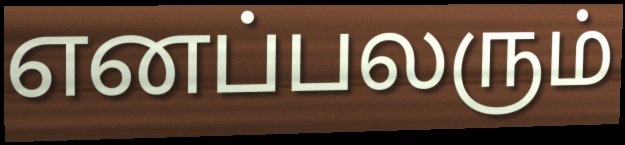
எனப்பலரும்